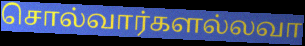
சொல்வார்களல்லவா